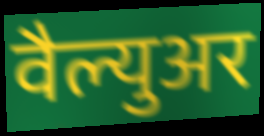
वैल्युअर